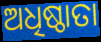
ଅଧିଷ୍ଠାତା